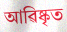
আৱিষ্কৃত